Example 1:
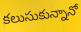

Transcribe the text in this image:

కలుసుకున్నానో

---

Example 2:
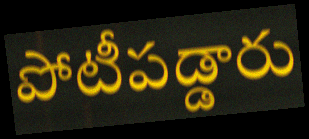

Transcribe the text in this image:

పోటీపడ్డారు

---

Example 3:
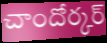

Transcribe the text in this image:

చాందోర్కర్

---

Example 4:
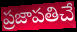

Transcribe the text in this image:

ప్రజాపతిచే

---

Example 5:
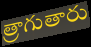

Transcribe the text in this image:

త్రాగుతారు